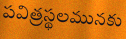
పవిత్రస్థలమునకు